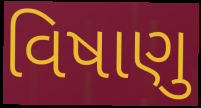
વિષાણુ